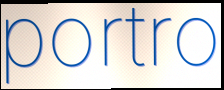
portro